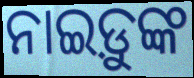
ନାଇଡ଼ୁଙ୍କ